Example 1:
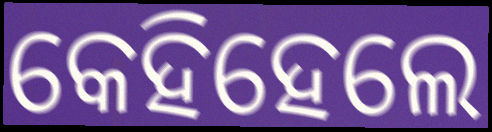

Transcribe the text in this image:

କେହିହେଲେ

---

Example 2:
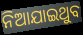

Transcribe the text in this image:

ନିଆଯାଇଥୁବ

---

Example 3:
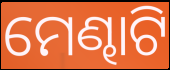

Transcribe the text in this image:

ମେଣ୍ଢାଟି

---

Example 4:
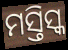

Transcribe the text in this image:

ମସ୍ତିସ୍କ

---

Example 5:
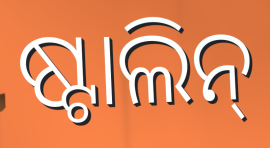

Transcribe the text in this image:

ଷ୍ଟାଲିନ୍